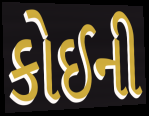
કોઈની